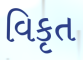
વિકૃત